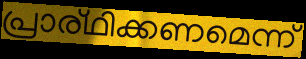
പ്രാര്ഥിക്കണമെന്ന്